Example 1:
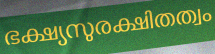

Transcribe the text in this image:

ഭക്ഷ്യസുരക്ഷിതത്വം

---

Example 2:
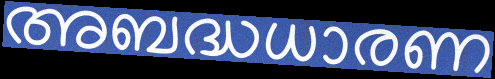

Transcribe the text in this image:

അബദ്ധധാരണ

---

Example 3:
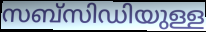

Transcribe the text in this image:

സബ്സിഡിയുള്ള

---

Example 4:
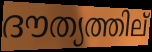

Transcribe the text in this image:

ദൗത്യത്തില്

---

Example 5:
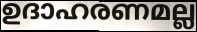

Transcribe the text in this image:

ഉദാഹരണമല്ല